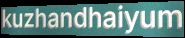
kuzhandhaiyum